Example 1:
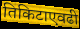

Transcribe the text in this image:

तिकिटाएवढी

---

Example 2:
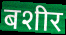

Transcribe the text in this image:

बशीर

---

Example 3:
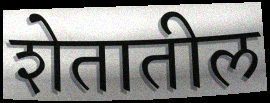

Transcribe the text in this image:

शेतातील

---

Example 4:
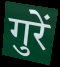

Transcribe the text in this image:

गुरें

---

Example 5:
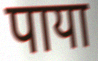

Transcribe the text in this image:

पाया